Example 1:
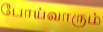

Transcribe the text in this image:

போய்வாரும்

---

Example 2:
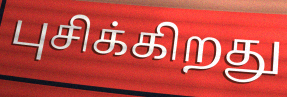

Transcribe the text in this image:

புசிக்கிறது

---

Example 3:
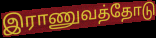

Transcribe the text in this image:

இராணுவத்தோடு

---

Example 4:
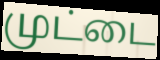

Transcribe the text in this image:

முட்டை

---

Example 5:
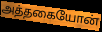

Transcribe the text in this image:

அத்தகையோன்